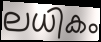
ലധികം